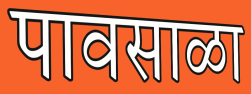
पावसाळा